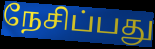
நேசிப்பது